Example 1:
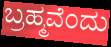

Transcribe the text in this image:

ಬ್ರಹ್ಮವೆಂದು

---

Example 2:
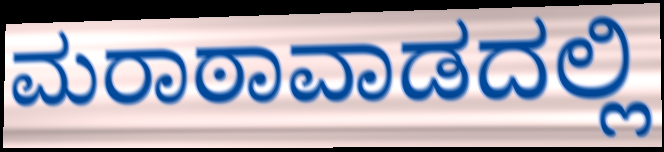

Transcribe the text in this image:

ಮರಾಠಾವಾಡದಲ್ಲಿ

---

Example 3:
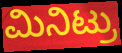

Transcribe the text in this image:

ಮಿನಿಟ್ರು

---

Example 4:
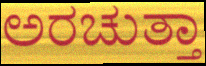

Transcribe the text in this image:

ಅರಚುತ್ತಾ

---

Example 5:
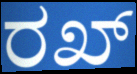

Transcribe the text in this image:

ರಖ್